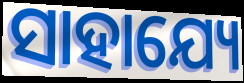
ସାହାଯ୍ୟେ